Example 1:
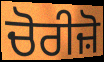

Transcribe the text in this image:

ਚੋਰੀਜ਼ੋ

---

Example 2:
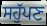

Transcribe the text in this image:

ਸਹੁੱਪਣ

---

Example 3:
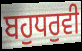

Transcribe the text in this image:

ਬਹੁਧਰੁਵੀ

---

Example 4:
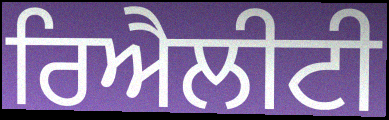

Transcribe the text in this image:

ਰਿਐਲੀਟੀ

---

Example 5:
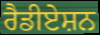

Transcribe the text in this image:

ਰੈਡੀਏਸ਼ਨ